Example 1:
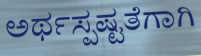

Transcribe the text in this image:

ಅರ್ಥಸ್ಪಷ್ಟತೆಗಾಗಿ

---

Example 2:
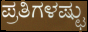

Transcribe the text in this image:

ಪ್ರತಿಗಳಷ್ಟು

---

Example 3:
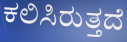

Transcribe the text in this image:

ಕಲಿಸಿರುತ್ತದೆ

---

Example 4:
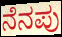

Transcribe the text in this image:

ನೆನಪು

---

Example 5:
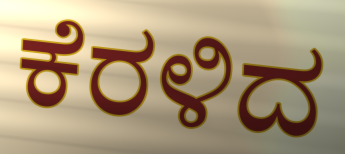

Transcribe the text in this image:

ಕೆರಳಿದ